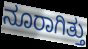
ನೂರಾಗಿತ್ತು